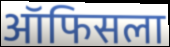
ऑफिसला